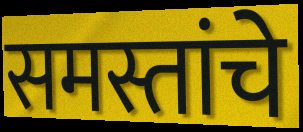
समस्तांचे